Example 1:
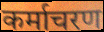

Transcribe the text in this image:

कर्माचरण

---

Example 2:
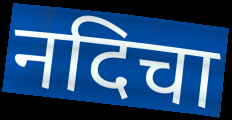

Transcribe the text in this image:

नदिचा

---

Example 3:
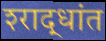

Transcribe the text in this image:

श्राद्धांत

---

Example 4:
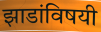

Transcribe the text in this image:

झाडांविषयी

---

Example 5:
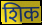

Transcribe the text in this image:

शिक